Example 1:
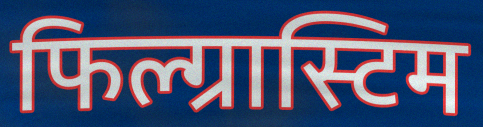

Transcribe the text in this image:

फिल्ग्रास्टिम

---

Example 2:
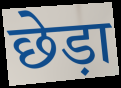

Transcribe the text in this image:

छेड़ा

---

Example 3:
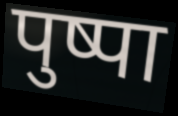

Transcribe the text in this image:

पुष्पा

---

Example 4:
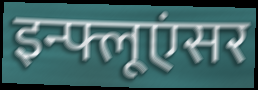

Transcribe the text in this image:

इन्फ्लूएंसर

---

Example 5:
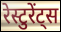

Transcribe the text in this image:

रेस्टुरेंट्स